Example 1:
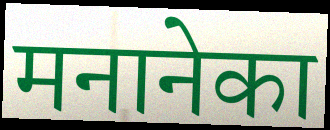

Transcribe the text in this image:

मनानेका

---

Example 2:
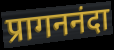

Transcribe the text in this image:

प्रागननंदा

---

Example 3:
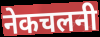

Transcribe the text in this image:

नेकचलनी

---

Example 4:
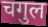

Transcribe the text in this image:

चगुल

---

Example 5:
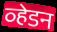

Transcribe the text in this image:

व्हेडन